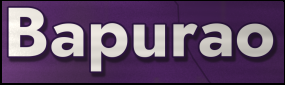
Bapurao